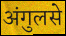
अंगुलसे